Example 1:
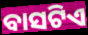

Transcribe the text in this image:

ବାସଟିଏ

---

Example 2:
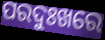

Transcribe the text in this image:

ପରଦୁଃଖରେ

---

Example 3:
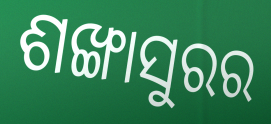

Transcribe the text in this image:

ଶଙ୍ଖାସୁରର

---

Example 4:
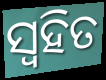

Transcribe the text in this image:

ସ୍ୱହିତ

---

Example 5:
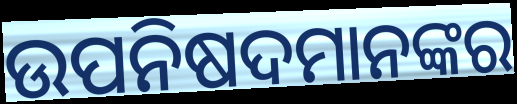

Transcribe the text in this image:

ଉପନିଷଦମାନଙ୍କର